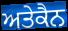
ਅਤੇਕੈਨ